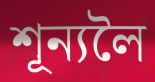
শূন্যলৈ